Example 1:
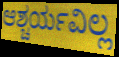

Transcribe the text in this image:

ಆಶ್ಚರ್ಯವಿಲ್ಲ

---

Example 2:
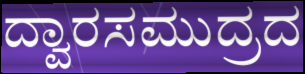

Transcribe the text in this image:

ದ್ವಾರಸಮುದ್ರದ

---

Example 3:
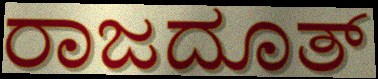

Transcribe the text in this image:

ರಾಜದೂತ್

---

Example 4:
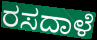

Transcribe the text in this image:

ರಸದಾಳೆ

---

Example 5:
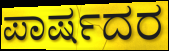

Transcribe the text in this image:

ಪಾರ್ಷದರ